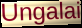
Ungalai